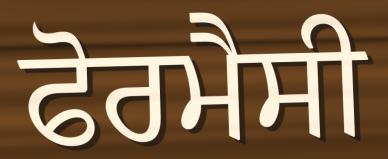
ਫੋਰਮੈਸੀ